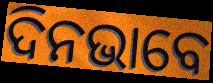
ଦିନଭାବେ